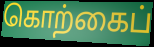
கொற்கைப்